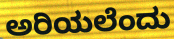
ಅರಿಯಲೆಂದು